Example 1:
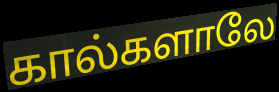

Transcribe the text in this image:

கால்களாலே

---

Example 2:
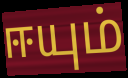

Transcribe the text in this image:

ஈயும்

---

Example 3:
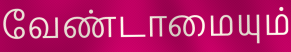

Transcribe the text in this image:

வேண்டாமையும்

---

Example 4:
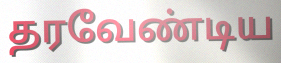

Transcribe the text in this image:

தரவேண்டிய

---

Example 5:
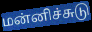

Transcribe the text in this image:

மன்னிச்சுடு